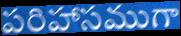
పరిహాసముగా